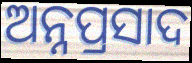
ଅନ୍ନପ୍ରସାଦ